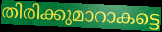
തിരിക്കുമാറാകട്ടെ